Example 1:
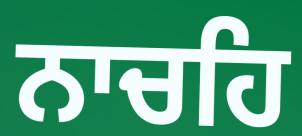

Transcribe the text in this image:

ਨਾਚਹਿ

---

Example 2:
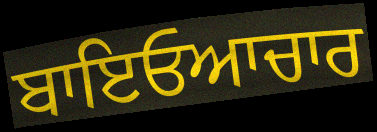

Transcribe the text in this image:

ਬਾਇਓਆਚਾਰ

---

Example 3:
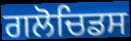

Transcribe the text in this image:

ਗਲੋਚਿਡਸ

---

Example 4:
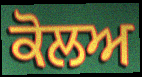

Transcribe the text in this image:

ਕੋਲਅ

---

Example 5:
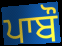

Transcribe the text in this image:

ਪਾਬੌ